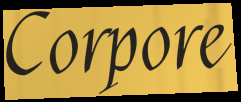
Corpore